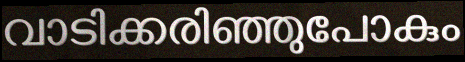
വാടിക്കരിഞ്ഞുപോകും